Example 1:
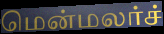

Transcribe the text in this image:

மென்மலர்ச்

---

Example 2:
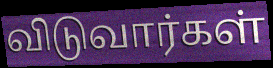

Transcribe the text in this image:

விடுவார்கள்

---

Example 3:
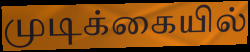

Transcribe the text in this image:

முடிக்கையில்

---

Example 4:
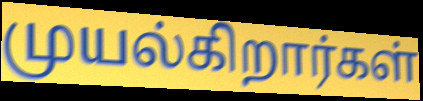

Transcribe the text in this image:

முயல்கிறார்கள்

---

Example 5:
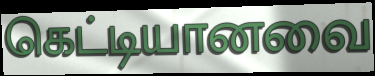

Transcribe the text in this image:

கெட்டியானவை